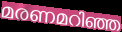
മരണമറിഞ്ഞ